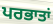
ਪਰਭਾਤਾਂ